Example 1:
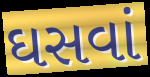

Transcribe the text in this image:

ઘસવાં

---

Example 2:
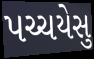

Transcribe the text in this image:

પચ્ચયેસુ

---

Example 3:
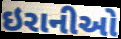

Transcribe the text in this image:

ઇરાનીઓ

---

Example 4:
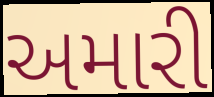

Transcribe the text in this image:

અમારી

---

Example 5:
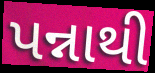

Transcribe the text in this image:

પન્નાથી